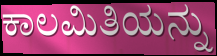
ಕಾಲಮಿತಿಯನ್ನು